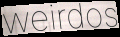
weirdos